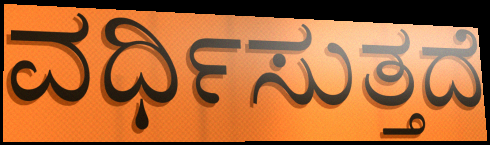
ವರ್ಧಿಸುತ್ತದೆ